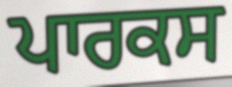
ਪਾਰਕਸ